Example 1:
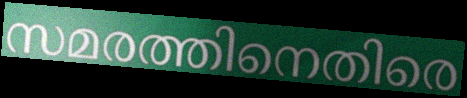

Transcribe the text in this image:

സമരത്തിനെതിരെ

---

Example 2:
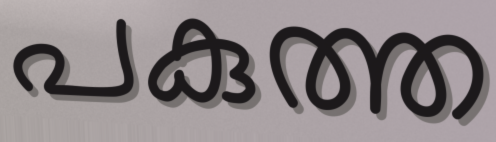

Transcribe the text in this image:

പകുത്ത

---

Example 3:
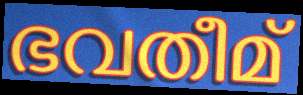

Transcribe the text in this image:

ഭവതീമ്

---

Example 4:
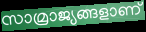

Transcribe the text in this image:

സാമ്രാജ്യങ്ങളാണ്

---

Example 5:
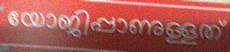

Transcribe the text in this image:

യോജിപ്പാണുള്ളത്